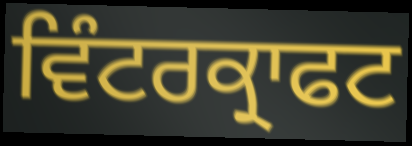
ਵਿੰਟਰਕ੍ਰਾਫਟ